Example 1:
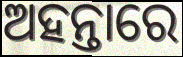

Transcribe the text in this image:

ଅହନ୍ତାରେ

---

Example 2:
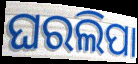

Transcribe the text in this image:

ଘରଲିପା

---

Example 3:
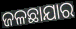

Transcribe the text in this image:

ଜଳଛାଯାର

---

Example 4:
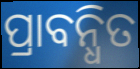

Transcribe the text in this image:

ପ୍ରାବନ୍ଧିତ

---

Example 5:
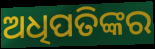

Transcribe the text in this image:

ଅଧିପତିଙ୍କର